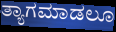
ತ್ಯಾಗಮಾಡಲೂ